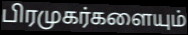
பிரமுகர்களையும்